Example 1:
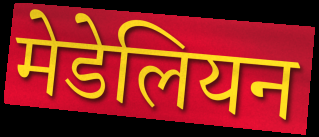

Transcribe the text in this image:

मेडेलियन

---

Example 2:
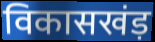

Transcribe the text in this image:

विकासखंड़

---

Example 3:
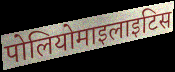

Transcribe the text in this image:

पोलियोमाइलाइटिस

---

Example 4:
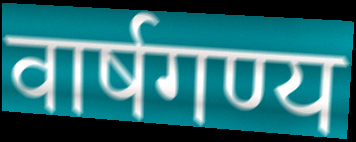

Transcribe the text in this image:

वार्षगण्य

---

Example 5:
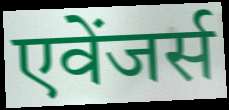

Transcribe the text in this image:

एवेंजर्स